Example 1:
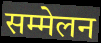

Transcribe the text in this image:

सम्‍मेलन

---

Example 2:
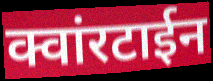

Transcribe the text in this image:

क्वांरटाईन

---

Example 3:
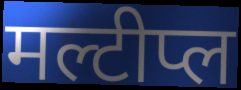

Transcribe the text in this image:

मल्टीप्ल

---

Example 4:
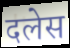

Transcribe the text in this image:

दलेस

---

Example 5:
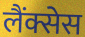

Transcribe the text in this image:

लैंक्सेस